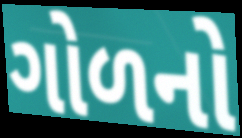
ગોળનો